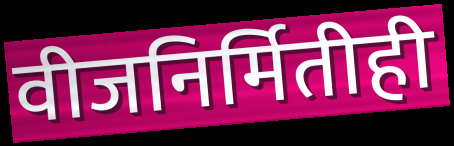
वीजनिर्मितीही